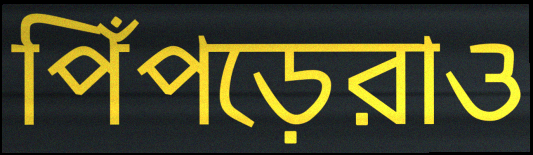
পিঁপড়েরাও